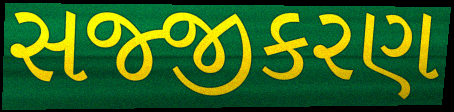
સજ્જીકરણ